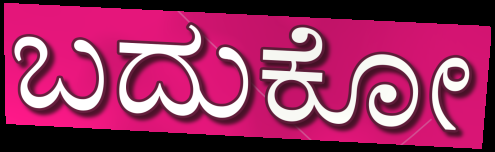
ಬದುಕೋ